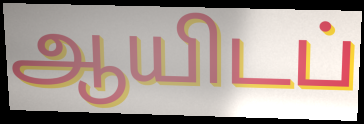
ஆயிடப்